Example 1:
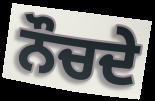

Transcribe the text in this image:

ਨੌਚਦੇ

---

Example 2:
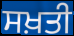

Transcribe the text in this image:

ਸਖ਼ਤੀ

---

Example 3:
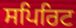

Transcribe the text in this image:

ਸਪਿਰਿਟ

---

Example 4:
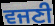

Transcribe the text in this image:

ਵਜਣੀ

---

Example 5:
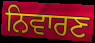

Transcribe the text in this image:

ਨਿਵਾਰਣ